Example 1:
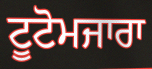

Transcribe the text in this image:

ਟੂਟੋਮਜਾਰਾ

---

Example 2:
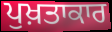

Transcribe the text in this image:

ਪੁਖ਼ਤਾਕਾਰ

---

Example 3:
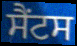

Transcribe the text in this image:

ਸੈਂਟਸ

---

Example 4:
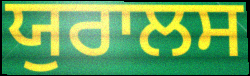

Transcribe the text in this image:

ਯੁਰਾਲਸ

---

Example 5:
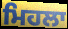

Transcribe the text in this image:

ਮਿਹਲਾ